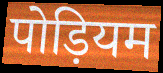
पोड़ियम